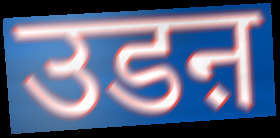
उडऩ